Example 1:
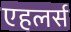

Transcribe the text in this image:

एहलर्स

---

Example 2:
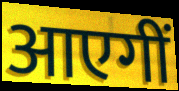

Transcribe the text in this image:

आएगीं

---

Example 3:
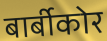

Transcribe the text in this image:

बार्बीकोर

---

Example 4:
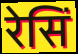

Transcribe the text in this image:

रेसिं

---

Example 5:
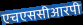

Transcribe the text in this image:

एचएससीआरपी